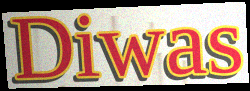
Diwas